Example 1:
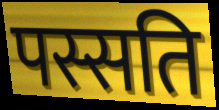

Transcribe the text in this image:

पस्सति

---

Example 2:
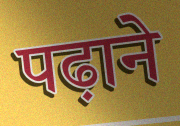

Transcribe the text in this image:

पढ़ाने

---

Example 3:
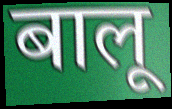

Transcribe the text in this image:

बालू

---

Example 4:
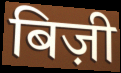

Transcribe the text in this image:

बिज़ी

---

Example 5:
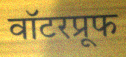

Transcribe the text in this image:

वॉटरप्रूफ